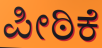
ಪೀಠಿಕೆ